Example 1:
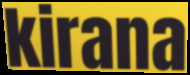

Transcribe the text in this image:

kirana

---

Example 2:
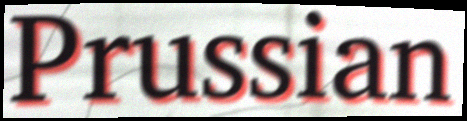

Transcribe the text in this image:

Prussian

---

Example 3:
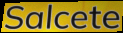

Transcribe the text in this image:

Salcete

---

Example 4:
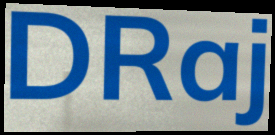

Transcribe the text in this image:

DRaj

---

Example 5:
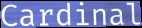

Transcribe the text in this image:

Cardinal